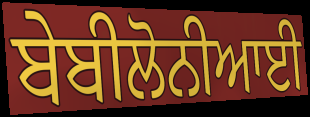
ਬੇਬੀਲੋਨੀਆਈ